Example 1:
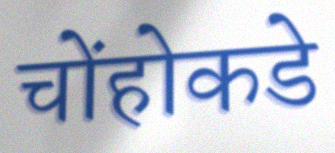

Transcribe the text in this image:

चोंहोकडे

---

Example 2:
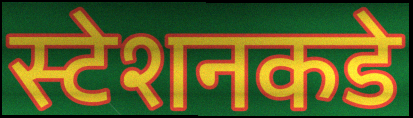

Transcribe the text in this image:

स्टेशनकडे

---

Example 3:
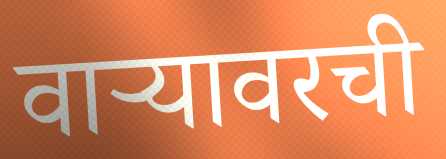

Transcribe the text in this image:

वार्‍यावरची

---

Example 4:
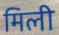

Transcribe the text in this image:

मिली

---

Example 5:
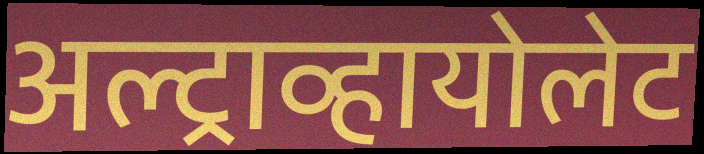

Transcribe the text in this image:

अल्ट्राव्हायोलेट